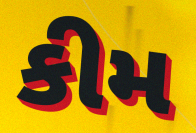
કીમ